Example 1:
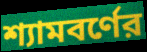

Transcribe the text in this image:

শ্যামবর্ণের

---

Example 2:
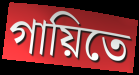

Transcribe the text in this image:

গায়িতে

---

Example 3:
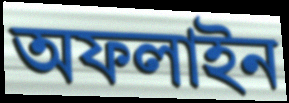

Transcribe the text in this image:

অফলাইন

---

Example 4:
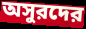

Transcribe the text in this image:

অসুরদের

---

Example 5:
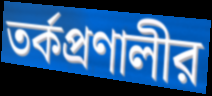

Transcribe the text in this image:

তর্কপ্রণালীর